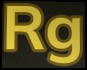
Rg